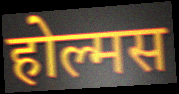
होल्मस